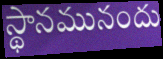
స్థానమునందు